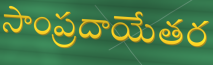
సాంప్రదాయేతర